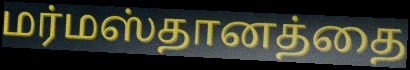
மர்மஸ்தானத்தை